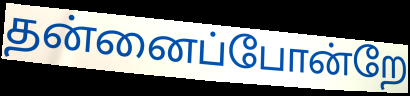
தன்னைப்போன்றே